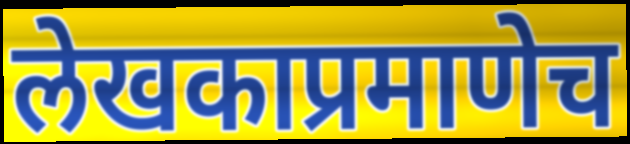
लेखकाप्रमाणेच